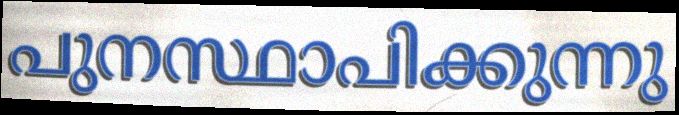
പുനസ്ഥാപിക്കുന്നു